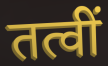
तत्वीं